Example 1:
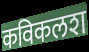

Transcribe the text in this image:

कविकलश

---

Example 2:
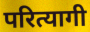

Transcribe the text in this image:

परित्यागी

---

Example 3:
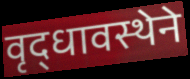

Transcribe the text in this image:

वृद्धावस्थेने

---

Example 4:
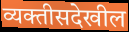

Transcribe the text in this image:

व्यक्तीसदेखील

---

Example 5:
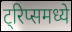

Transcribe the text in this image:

ट्रिप्समध्ये